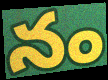
నం